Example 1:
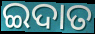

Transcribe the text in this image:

ଇଦାତ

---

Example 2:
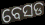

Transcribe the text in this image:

ବେସଡ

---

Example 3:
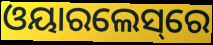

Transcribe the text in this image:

ଓୟାରଲେସ୍‌ରେ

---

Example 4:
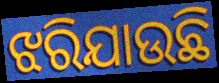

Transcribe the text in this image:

ଝରିଯାଉଛି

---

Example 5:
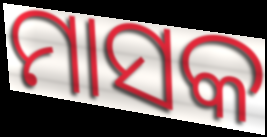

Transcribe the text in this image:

ମାସକ